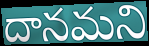
దానమని